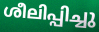
ശീലിപ്പിച്ചു